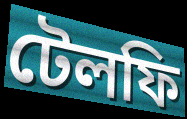
টেলফি